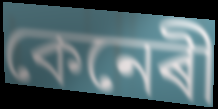
কেনেৰী